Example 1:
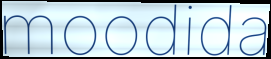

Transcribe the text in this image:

moodida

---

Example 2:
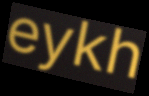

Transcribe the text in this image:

eykh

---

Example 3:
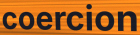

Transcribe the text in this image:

coercion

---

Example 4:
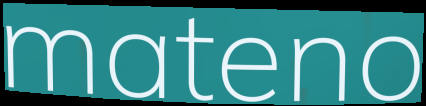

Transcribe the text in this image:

mateno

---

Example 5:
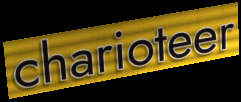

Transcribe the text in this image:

charioteer